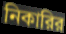
নিকারির